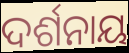
ଦର୍ଶନାୟ